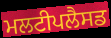
ਮਲਟੀਪਲੈਸਡ